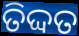
ତିଦ୍ଦତ